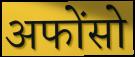
अफोंसो